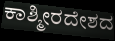
ಕಾಶ್ಮೀರದೇಶದ